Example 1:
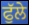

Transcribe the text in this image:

ਫੁੱਲੇ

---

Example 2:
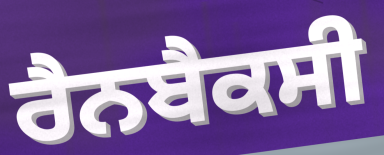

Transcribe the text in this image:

ਰੈਨਬੈਕਸੀ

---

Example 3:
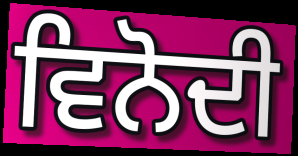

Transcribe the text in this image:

ਵਿਨੋਦੀ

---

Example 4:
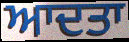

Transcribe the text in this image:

ਆਦਤਾ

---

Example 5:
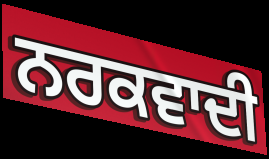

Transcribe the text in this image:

ਨਰਕਵਾਦੀ